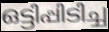
ഒട്ടിപ്പിടിച്ച